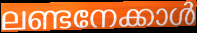
ലണ്ടനേക്കാൾ